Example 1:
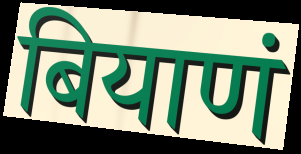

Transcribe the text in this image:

बियाणं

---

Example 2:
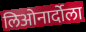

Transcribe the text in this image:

लिओनार्दोला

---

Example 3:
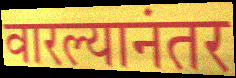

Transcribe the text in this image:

वारल्यानंतर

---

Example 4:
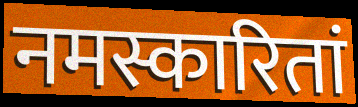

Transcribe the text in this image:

नमस्कारितां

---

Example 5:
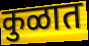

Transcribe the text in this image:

कुळात